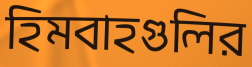
হিমবাহগুলির